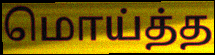
மொய்த்த